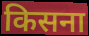
किसना